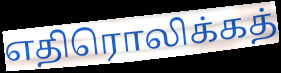
எதிரொலிக்கத்